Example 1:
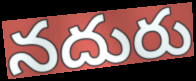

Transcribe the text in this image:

నదురు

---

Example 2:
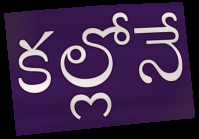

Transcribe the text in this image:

కల్లోనే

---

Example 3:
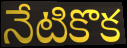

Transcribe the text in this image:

నేటికొక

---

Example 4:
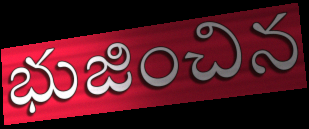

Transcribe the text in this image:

భుజించిన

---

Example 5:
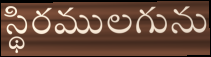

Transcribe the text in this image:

స్థిరములగును